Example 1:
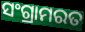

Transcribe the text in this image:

ସଂଗ୍ରାମରତ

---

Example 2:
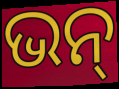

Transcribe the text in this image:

ଭନ୍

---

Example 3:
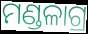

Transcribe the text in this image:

ମଣ୍ଡଳାଗ୍ର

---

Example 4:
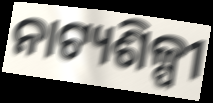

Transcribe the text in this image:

ନାଟ୍ୟଶିଳ୍ପୀ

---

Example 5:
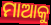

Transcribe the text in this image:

ମାଆକୁ